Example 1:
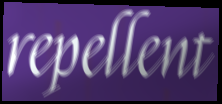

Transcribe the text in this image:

repellent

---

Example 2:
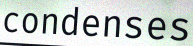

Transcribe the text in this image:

condenses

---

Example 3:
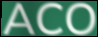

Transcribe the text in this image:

ACO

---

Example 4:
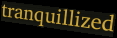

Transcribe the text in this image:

tranquillized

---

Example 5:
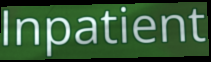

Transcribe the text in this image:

Inpatient